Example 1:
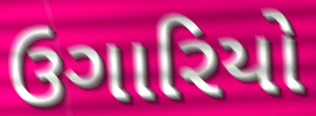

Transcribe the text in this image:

ઉગારિયો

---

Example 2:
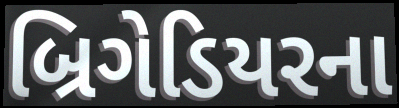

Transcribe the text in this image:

બ્રિગેડિયરના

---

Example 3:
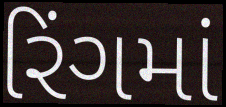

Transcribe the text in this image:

રિંગમાં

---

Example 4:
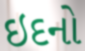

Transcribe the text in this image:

ઇદનો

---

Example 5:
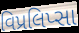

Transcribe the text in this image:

વિપ્રલિપ્સા